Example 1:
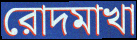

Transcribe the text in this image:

রোদমাখা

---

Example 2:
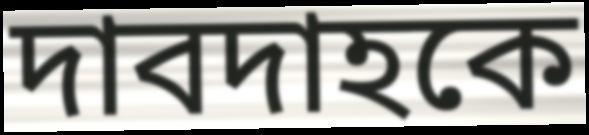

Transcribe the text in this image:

দাবদাহকে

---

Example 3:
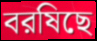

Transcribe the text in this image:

বরষিছে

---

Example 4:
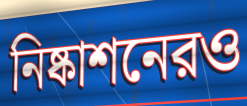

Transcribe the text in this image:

নিষ্কাশনেরও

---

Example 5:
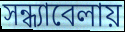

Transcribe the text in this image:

সন্ধ্যাবেলায়